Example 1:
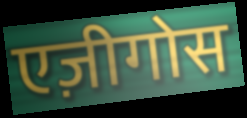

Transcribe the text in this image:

एज़ीगोस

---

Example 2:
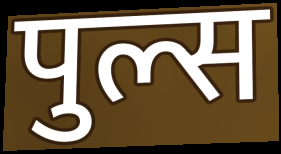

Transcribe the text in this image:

पुल्स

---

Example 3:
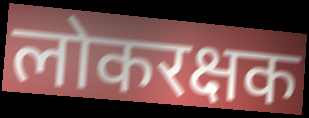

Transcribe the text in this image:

लोकरक्षक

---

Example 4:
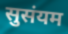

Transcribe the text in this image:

सुसंयम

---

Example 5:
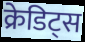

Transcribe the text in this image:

क्रेडिट्स